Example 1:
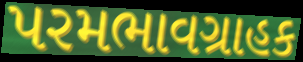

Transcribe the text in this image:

પરમભાવગ્રાહક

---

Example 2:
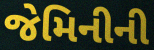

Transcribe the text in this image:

જેમિનીની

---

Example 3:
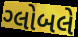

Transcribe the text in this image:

ગ્લોબલે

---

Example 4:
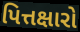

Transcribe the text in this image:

પિત્તક્ષારો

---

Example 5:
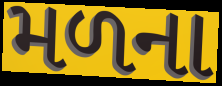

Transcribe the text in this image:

મળના